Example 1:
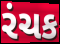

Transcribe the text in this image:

રંચક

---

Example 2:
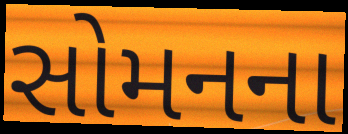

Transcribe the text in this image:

સોમનના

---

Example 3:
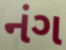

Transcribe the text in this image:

નંગ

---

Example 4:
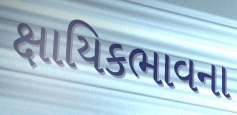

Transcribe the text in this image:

ક્ષાયિકભાવના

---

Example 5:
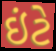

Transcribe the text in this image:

ઇંટે